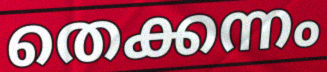
തെക്കന്നം